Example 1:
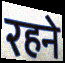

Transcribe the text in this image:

रहने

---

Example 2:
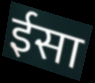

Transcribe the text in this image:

ईसा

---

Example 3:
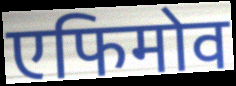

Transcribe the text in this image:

एफिमोव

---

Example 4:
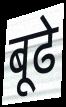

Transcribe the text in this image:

बूढे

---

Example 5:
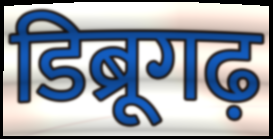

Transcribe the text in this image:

डिब्रूगढ़